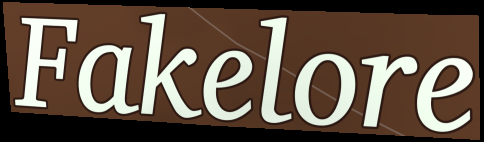
Fakelore